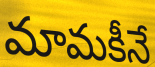
మామకీనే